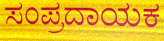
ಸಂಪ್ರದಾಯಕ